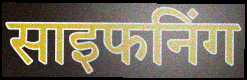
साइफनिंग